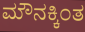
ಮೌನಕ್ಕಿಂತ